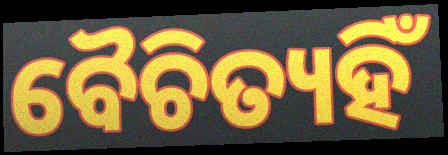
ବୈଚିତ୍ୟହିଁ